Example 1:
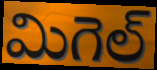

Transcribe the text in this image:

మిగెల్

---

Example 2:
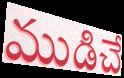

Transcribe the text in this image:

ముడిచే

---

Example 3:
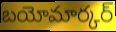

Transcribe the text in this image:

బయోమార్కర్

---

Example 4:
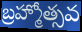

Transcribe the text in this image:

బ్రహ్మోత్సవ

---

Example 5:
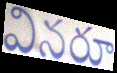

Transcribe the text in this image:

వినరూ